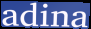
adina